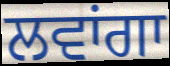
ਲਵਾਂਗਾ